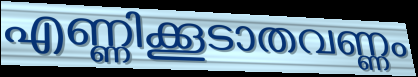
എണ്ണിക്കൂടാതവണ്ണം